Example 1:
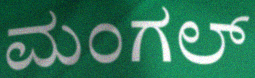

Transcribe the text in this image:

ಮಂಗಲ್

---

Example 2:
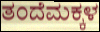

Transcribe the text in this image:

ತಂದೆಮಕ್ಕಳ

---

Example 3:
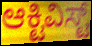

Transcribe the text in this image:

ಆಕ್ಟಿವಿಸ್ಟ್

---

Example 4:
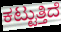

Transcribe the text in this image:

ಕಟ್ಟುತ್ತಿದೆ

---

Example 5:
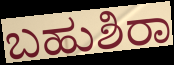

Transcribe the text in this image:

ಬಹುಶಿರಾ